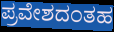
ಪ್ರವೇಶದಂತಹ